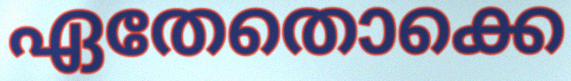
ഏതേതൊക്കെ